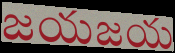
జయజయ